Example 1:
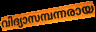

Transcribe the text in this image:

വിദ്യാസമ്പന്നരായ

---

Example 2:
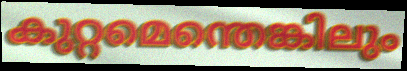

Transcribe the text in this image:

കുറ്റമെന്തെങ്കിലും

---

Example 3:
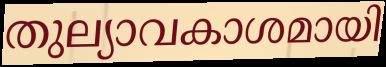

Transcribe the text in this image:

തുല്യാവകാശമായി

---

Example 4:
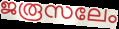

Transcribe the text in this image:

ജരൂസലേം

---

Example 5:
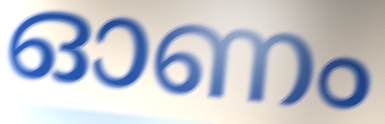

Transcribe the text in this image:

ഓണം